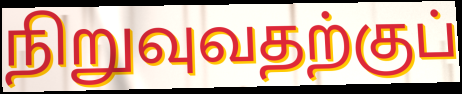
நிறுவுவதற்குப்